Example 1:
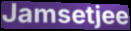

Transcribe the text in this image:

Jamsetjee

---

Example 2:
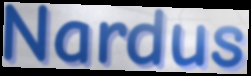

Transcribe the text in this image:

Nardus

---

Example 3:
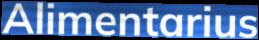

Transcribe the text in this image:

Alimentarius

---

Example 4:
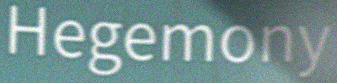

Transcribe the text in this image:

Hegemony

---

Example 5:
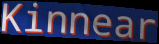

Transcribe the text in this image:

Kinnear